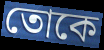
তোকে